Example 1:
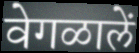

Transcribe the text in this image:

वेगळालें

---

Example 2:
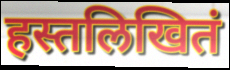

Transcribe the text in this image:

हस्तलिखितं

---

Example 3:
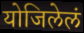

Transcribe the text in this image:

योजिलेलं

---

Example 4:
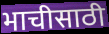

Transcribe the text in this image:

भाचीसाठी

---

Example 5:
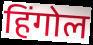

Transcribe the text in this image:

हिंगोल